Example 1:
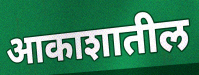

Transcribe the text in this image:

आकाशातील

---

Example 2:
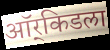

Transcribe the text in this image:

ऑर्किडला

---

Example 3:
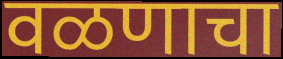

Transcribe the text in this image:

वळणाचा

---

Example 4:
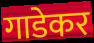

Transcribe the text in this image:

गाडेकर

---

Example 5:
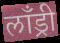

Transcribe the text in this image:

लॉंड्री